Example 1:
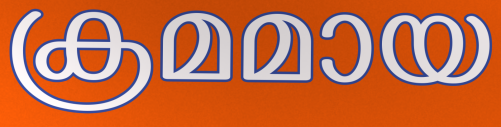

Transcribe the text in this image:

ക്രമമായ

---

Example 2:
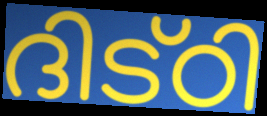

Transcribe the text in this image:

ദിട്ഠി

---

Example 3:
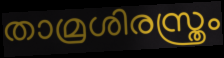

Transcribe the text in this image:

താമ്രശിരസ്ത്രം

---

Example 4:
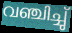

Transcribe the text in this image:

വഞ്ചിച്ചു്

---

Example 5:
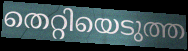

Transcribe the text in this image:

തെറ്റിയെടുത്ത